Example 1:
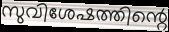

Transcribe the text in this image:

സുവിശേഷത്തിന്റെ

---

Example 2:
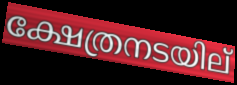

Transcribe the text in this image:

ക്ഷേത്രനടയില്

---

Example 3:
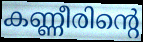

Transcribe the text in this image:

കണ്ണീരിന്റെ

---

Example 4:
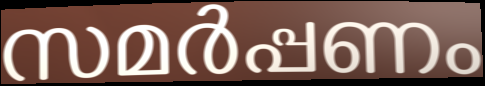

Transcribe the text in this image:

സമർപ്പണം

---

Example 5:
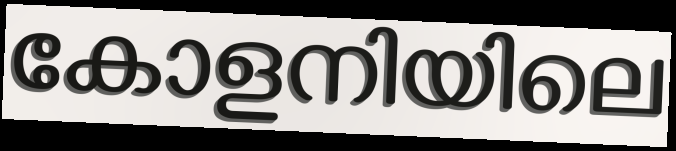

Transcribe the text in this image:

കോളനിയിലെ